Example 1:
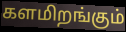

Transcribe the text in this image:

களமிறங்கும்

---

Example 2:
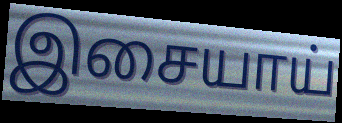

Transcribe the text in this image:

இசையாய்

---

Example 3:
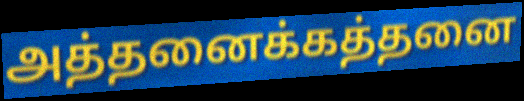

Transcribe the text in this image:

அத்தனைக்கத்தனை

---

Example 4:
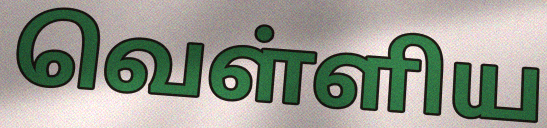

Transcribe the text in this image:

வெள்ளிய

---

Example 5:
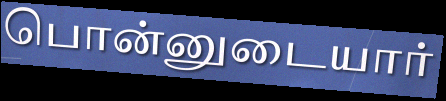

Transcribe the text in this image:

பொன்னுடையார்